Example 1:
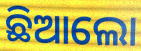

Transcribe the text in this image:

ଛିଆଲୋ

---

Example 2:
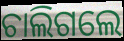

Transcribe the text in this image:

ଚାଲିଗଲେ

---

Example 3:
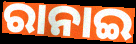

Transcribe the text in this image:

ରାନାଇ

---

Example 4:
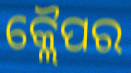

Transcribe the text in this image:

କ୍ଲୈପର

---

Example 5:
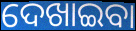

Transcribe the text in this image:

ଦେଖାଇବା